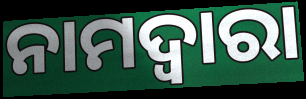
ନାମଦ୍ଵାରା